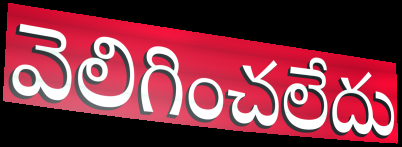
వెలిగించలేదు